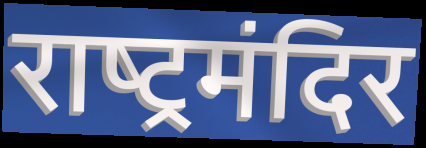
राष्ट्रमंदिर